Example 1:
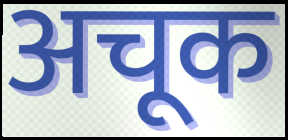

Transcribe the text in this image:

अचूक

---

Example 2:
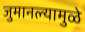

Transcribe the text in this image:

जुमानल्यामुळे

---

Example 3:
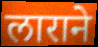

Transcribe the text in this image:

लाराने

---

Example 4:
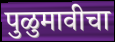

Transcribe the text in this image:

पुळुमावीचा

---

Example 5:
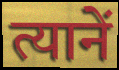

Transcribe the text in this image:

त्यानें